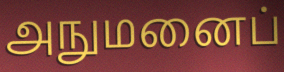
அநுமனைப்